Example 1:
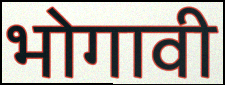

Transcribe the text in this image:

भोगावी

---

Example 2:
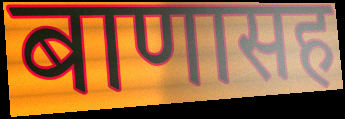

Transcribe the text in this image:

बाणासह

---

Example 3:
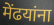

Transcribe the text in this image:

मेंढयांना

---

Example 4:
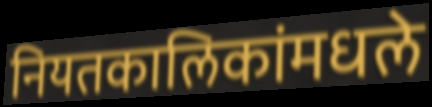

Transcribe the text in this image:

नियतकालिकांमधले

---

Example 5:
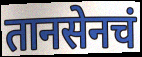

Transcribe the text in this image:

तानसेनचं